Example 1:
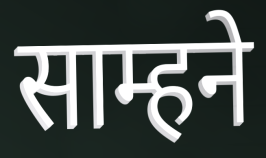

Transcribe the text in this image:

साम्हने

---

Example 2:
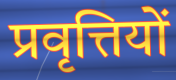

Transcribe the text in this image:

प्रवृत्तियों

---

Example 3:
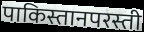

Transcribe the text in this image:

पाकिस्तानपरस्ती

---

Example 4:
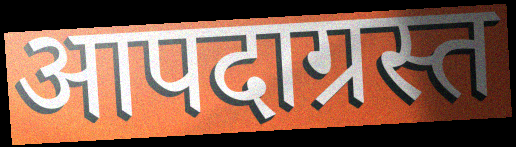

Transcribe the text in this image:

आपदाग्रस्त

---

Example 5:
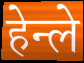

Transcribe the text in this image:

हेन्ले